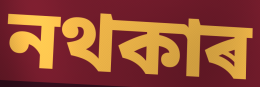
নথকাৰ